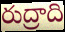
రుద్రాది